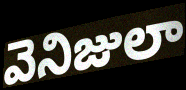
వెనిజులా